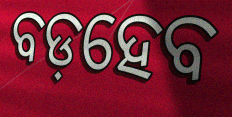
ବଡ଼ହେବ